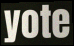
yote